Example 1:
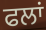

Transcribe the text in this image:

ਫਲਾਂ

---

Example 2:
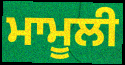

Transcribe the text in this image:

ਮਾਮੂਲੀ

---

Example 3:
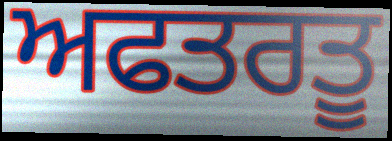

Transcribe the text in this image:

ਅਫਤਰਤੂ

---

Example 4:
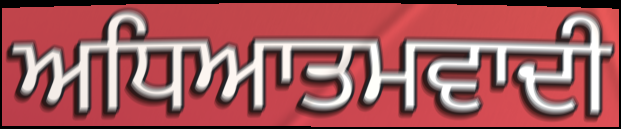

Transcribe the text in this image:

ਅਧਿਆਤਮਵਾਦੀ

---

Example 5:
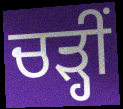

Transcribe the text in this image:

ਚੜ੍ਹੀਂ